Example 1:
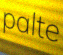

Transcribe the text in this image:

palte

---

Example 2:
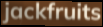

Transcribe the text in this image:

jackfruits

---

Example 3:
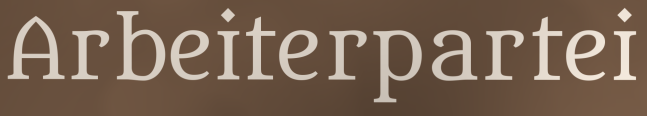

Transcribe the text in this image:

Arbeiterpartei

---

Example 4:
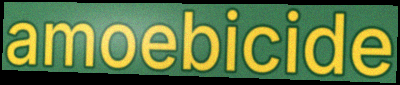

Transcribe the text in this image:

amoebicide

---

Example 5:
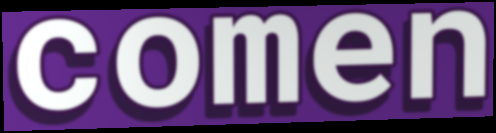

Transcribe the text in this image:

comen